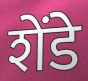
शेंडे